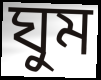
ঘুম